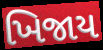
ખિજાય